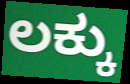
ಲಕ್ಕು